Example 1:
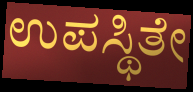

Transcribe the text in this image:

ಉಪಸ್ಥಿತೇ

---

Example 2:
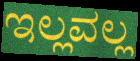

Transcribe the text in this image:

ಇಲ್ಲವಲ್ಲ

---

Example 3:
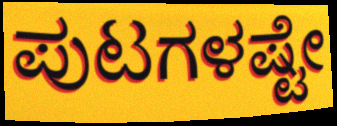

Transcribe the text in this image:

ಪುಟಗಳಷ್ಟೇ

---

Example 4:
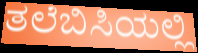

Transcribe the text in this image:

ತಲೆಬಿಸಿಯಲ್ಲಿ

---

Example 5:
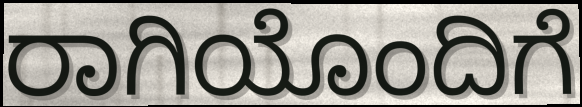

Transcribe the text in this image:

ರಾಗಿಯೊಂದಿಗೆ